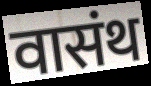
वासंथ